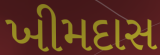
ખીમદાસ